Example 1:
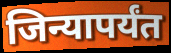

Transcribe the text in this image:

जिन्यापर्यंत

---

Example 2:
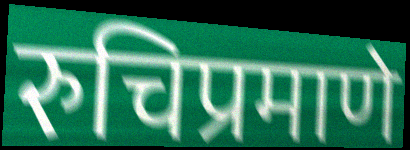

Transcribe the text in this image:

रुचिप्रमाणे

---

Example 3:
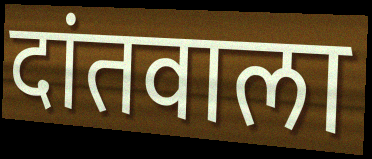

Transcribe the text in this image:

दांतवाला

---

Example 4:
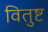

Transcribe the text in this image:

वितुष्ट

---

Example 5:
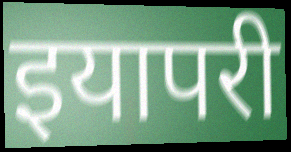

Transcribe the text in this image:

इयापरी